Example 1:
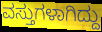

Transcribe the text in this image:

ವಸ್ತುಗಳಾಗಿದ್ದು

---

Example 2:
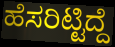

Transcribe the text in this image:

ಹೆಸರಿಟ್ಟಿದ್ದೆ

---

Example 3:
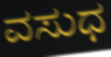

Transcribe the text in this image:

ವಸುಧ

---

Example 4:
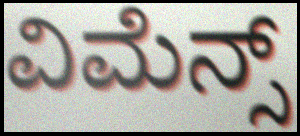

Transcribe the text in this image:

ವಿಮೆನ್ಸ್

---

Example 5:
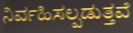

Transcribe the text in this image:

ನಿರ್ವಹಿಸಲ್ಪಡುತ್ತವೆ